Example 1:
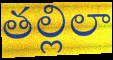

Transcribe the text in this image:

తల్లిలా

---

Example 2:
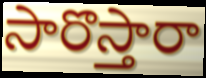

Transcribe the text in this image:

సారొస్తారా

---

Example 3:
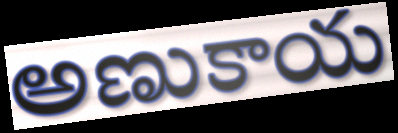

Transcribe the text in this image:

అణుకాయ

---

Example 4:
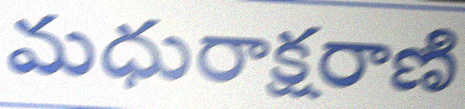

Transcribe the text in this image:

మధురాక్షరాణి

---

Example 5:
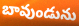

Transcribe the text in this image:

బావుండును